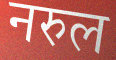
नरुल